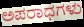
ಅಪರಾಧಗಳು